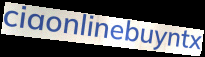
ciaonlinebuyntx